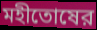
মহীতোষের